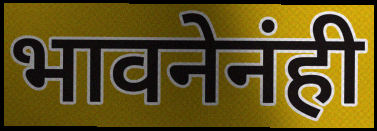
भावनेनंही